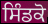
ਸਿੰਡਕੋ